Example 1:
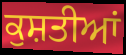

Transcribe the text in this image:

ਕੁਸ਼ਤੀਆਂ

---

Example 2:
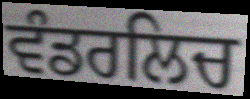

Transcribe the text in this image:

ਵੰਡਰਲਿਚ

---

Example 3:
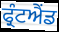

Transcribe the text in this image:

ਫ੍ਰੰਟਐਂਡ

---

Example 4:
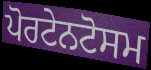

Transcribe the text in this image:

ਪੋਰਟੇਨਟੋਸਮ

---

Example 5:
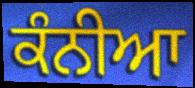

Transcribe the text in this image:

ਕੰਨੀਆ